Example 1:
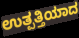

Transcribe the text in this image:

ಉತ್ಪತ್ತಿಯಾದ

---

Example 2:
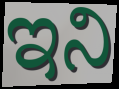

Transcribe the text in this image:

ಇನಿ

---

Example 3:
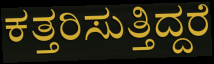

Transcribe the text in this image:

ಕತ್ತರಿಸುತ್ತಿದ್ದರೆ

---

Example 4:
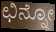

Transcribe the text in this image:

ಛಿನ್ನೋ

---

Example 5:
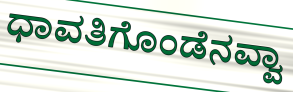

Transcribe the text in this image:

ಧಾವತಿಗೊಂಡೆನವ್ವಾ